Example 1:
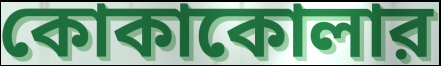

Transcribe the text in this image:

কোকাকোলার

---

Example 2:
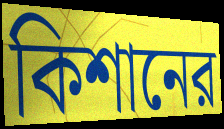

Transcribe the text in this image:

কিশানের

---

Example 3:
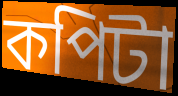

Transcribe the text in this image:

কপিটা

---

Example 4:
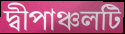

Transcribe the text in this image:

দ্বীপাঞ্চলটি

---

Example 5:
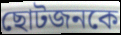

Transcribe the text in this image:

ছোটজনকে